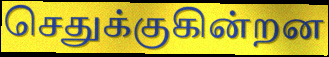
செதுக்குகின்றன